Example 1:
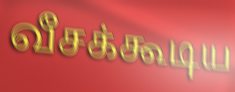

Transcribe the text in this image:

வீசக்கூடிய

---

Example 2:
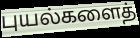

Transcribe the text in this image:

புயல்களைத்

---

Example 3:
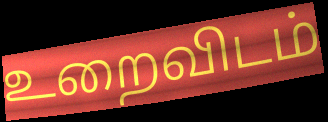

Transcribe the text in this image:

உறைவிடம்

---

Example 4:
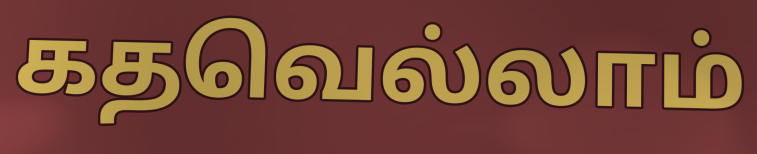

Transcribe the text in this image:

கதவெல்லாம்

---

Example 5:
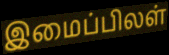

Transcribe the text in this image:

இமைப்பிலள்